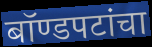
बॉण्डपटांचा